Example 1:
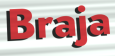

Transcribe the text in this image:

Braja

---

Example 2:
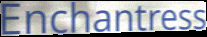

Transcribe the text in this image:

Enchantress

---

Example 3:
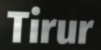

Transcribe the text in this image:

Tirur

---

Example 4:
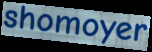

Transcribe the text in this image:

shomoyer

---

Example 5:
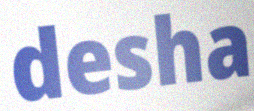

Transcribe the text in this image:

desha